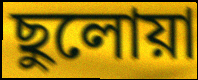
ছুলোয়া